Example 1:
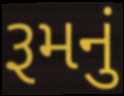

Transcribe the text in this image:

રૂમનું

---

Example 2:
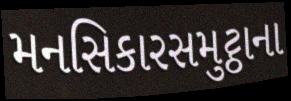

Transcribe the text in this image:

મનસિકારસમુટ્ઠાના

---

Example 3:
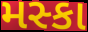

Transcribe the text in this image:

મસ્કા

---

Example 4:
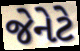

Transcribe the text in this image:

જેનેટે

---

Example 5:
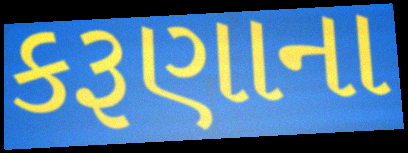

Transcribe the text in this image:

કરૂણાના